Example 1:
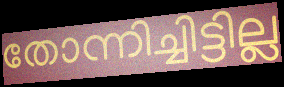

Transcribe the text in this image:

തോന്നിച്ചിട്ടില്ല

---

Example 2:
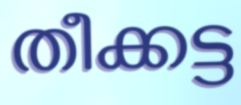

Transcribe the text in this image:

തീക്കട്ട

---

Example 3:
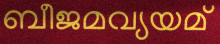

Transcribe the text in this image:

ബീജമവ്യയമ്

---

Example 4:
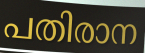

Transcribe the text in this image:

പതിരാന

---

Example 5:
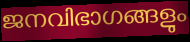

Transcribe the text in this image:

ജനവിഭാഗങ്ങളും